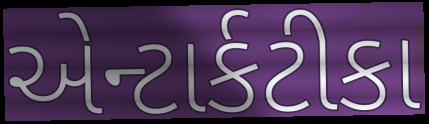
એન્ટાર્કટીકા